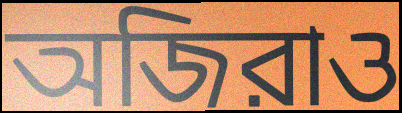
অজিরাও